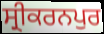
ਸ੍ਰੀਕਰਨਪੁਰ